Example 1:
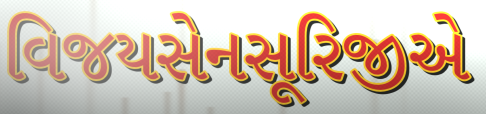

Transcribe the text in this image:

વિજયસેનસૂરિજીએ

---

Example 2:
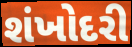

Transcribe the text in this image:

શંખોદરી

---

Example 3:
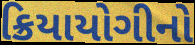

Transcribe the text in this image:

ક્રિયાયોગીનો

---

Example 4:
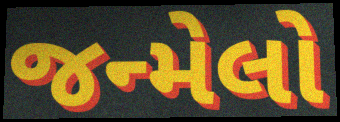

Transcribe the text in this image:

જન્મેલો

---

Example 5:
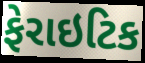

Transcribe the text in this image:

ફેરાઇટિક